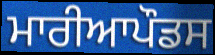
ਮਾਰੀਆਪੌਡਸ